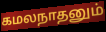
கமலநாதனும்